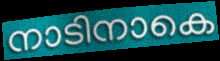
നാടിനാകെ